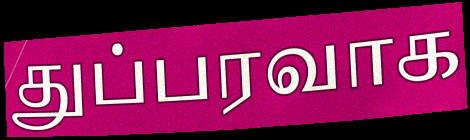
துப்பரவாக